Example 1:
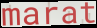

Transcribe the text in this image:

marat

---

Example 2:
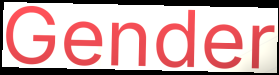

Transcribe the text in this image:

Gender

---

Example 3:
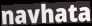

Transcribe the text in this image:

navhata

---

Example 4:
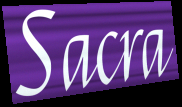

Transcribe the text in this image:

Sacra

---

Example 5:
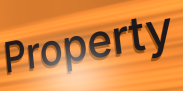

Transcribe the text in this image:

Property